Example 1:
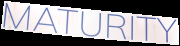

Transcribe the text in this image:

MATURITY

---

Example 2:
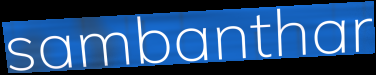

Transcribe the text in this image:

sambanthar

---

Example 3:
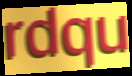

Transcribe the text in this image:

rdqu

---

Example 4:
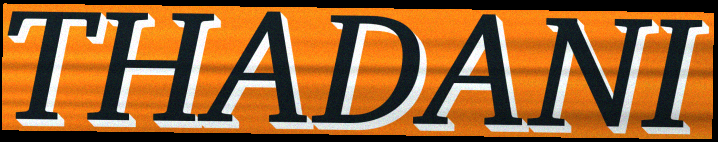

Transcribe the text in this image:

THADANI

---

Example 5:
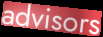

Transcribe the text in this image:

advisors